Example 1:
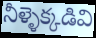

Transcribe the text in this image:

నీళ్ళెక్కడివి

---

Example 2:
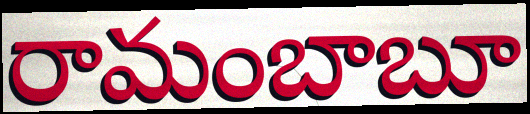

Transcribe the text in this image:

రామంబాబూ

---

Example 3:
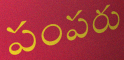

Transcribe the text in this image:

పంపరు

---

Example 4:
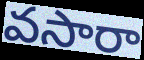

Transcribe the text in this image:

వసారా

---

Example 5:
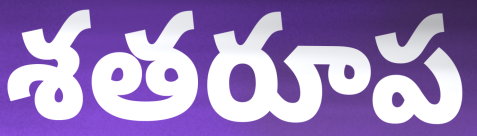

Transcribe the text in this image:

శతరూప